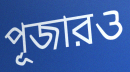
পূজারও